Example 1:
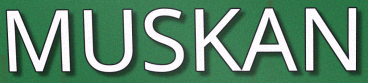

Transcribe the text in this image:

MUSKAN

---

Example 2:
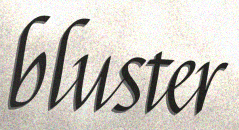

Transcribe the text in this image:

bluster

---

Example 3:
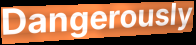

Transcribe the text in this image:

Dangerously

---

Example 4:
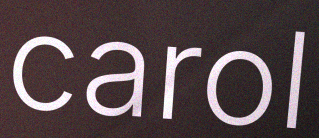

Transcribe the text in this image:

carol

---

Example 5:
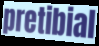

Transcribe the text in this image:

pretibial